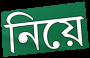
নিয়ে